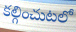
కల్గించుటలో